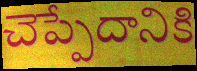
చెప్పేదానికి